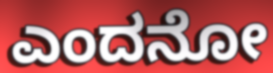
ಎಂದನೋ